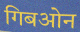
गिबओन